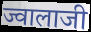
ज्वालाजी